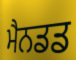
ਮੈਨਡਡ